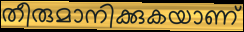
തീരുമാനിക്കുകയാണ്